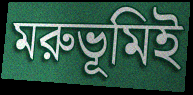
মরুভূমিই